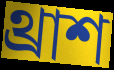
থ্রাশ